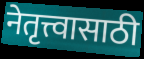
नेतृत्त्वासाठी